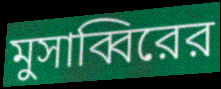
মুসাব্বিরের